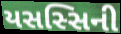
યસસ્સિની